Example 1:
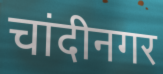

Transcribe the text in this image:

चांदीनगर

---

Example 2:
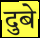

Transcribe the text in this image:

दुबे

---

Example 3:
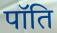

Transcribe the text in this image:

पॉति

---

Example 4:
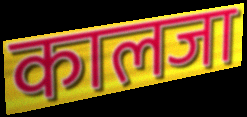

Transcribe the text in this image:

कालजा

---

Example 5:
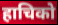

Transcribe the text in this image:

हाचिको